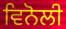
ਵਿਨੋਲੀ